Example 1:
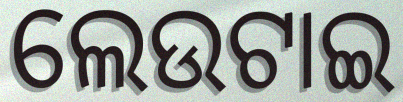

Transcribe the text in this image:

ଲେଉଟାଇ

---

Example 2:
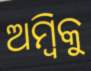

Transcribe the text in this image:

ଅମ୍ବିକୁ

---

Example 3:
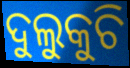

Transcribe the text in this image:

ଦୁଲୁକୁଚି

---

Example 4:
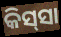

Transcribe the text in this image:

କିସ୍‍ସା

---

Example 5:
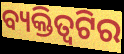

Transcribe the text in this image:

ବ୍ୟକ୍ତିତ୍ୱଟିର